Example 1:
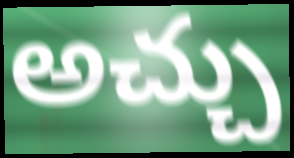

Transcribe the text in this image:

అచ్చు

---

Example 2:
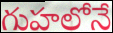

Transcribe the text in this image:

గుహలోనే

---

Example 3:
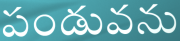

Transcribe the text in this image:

పండువను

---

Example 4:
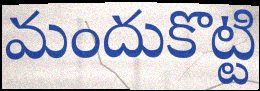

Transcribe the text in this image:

మందుకొట్టి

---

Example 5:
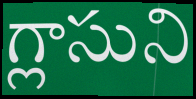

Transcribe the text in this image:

గ్లాసుని